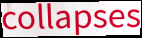
collapses